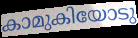
കാമുകിയോടു